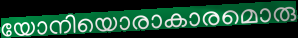
യോനിയൊരാകാരമൊരു